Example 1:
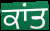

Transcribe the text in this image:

ਕਾਂਤ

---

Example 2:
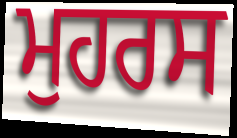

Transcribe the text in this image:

ਮੁਹਰਸ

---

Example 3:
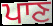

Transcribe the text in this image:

ਪਾਣ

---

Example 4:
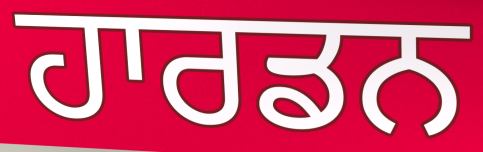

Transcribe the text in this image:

ਹਾਰਡਨ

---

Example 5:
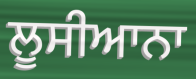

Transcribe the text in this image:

ਲੂਸੀਆਨਾ